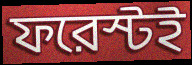
ফরেস্টই